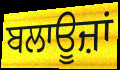
ਬਲਾਊਜ਼ਾਂ